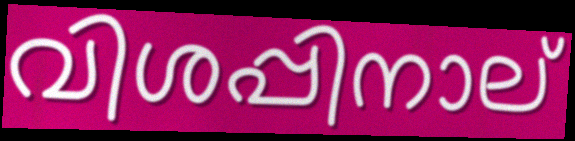
വിശപ്പിനാല്